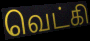
வெட்கி